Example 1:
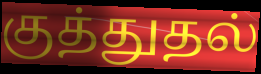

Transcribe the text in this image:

குத்துதல்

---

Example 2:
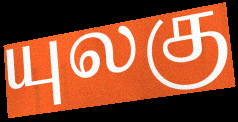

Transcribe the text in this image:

யுலகு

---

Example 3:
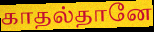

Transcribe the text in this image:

காதல்தானே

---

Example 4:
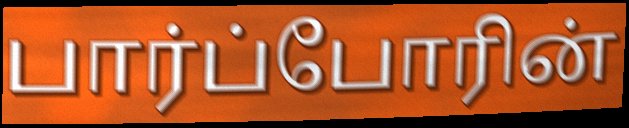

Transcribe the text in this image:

பார்ப்போரின்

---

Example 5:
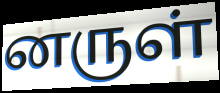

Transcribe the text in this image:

னருள்